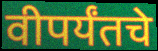
वीपर्यंतचे